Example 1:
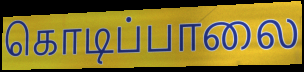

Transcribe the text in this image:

கொடிப்பாலை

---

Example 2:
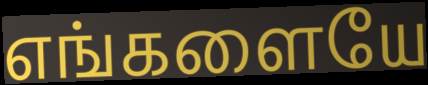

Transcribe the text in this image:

எங்களையே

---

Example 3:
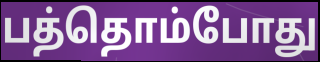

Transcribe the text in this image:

பத்தொம்போது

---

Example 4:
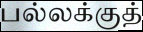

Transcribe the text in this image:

பல்லக்குத்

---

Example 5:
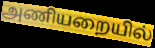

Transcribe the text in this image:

அணியறையில்